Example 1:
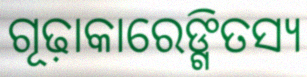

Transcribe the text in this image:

ଗୂଢ଼ାକାରେଙ୍ଗିତସ୍ୟ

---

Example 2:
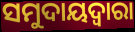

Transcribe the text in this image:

ସମୁଦାୟଦ୍ୱାରା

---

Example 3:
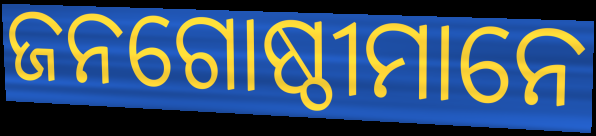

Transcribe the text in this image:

ଜନଗୋଷ୍ଠୀମାନେ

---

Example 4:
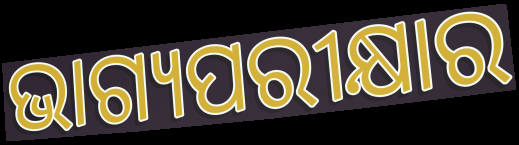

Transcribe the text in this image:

ଭାଗ୍ୟପରୀକ୍ଷାର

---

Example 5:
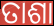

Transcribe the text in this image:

ତାଶା